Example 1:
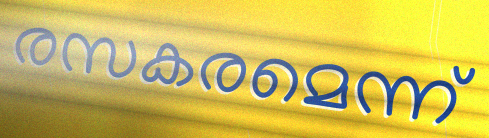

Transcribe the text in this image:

രസകരമെന്ന്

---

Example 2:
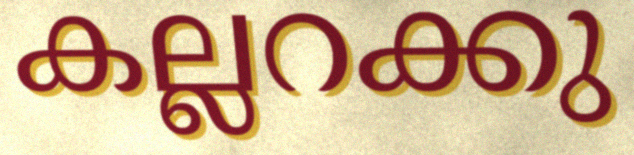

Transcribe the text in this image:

കല്ലറക്കു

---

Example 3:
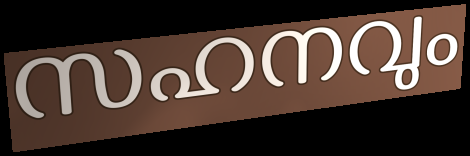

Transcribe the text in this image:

സഹനവും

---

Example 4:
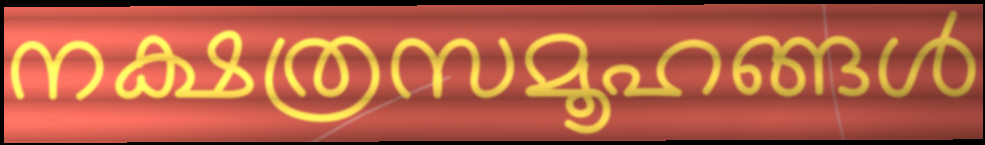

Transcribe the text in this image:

നക്ഷത്രസമൂഹങ്ങൾ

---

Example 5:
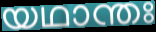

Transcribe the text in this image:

യഥാന്തഃ